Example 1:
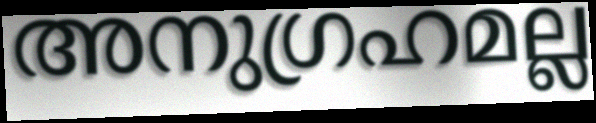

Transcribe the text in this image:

അനുഗ്രഹമല്ല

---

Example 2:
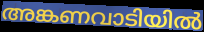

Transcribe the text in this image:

അങ്കണവാടിയിൽ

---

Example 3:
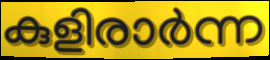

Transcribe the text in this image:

കുളിരാർന്ന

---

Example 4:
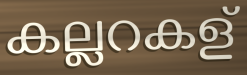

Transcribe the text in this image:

കല്ലറകള്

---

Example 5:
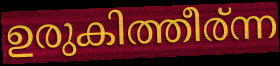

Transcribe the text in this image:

ഉരുകിത്തീര്ന്ന